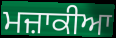
ਮਜ਼ਾਕੀਆ